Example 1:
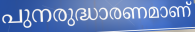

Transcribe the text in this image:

പുനരുദ്ധാരണമാണ്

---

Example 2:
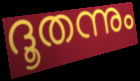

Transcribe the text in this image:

ദൂതന്നും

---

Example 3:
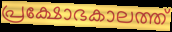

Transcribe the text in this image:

പ്രക്ഷോഭകാലത്ത്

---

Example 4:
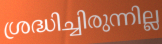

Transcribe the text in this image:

ശ്രദ്ധിച്ചിരുന്നില്ല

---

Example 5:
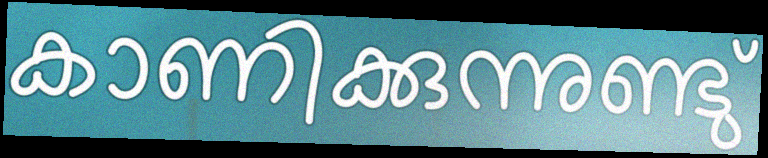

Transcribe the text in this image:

കാണിക്കുന്നുണ്ടു്